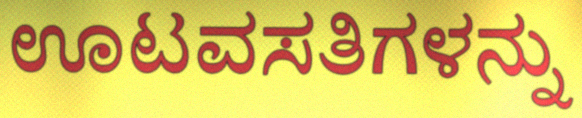
ಊಟವಸತಿಗಳನ್ನು